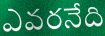
ఎవరనేది